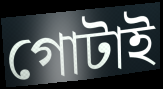
গোটাই